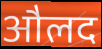
औलद